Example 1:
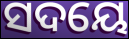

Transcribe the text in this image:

ସଦୟେ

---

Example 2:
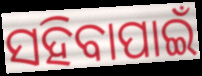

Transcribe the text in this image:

ସହିବାପାଇଁ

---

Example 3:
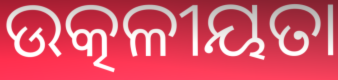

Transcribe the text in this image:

ଉତ୍କଳୀୟତା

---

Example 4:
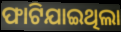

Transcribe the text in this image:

ଫାଟିଯାଇଥିଲା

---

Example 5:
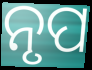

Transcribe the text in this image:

ନୃପ